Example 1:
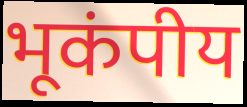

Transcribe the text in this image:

भूकंपीय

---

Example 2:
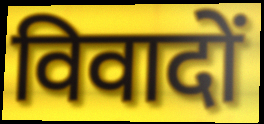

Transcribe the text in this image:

विवादों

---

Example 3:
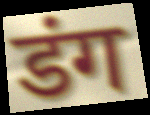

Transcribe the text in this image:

डंग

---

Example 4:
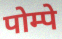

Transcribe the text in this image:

पोम्पे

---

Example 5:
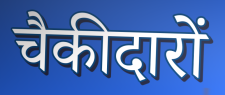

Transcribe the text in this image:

चैकीदारों